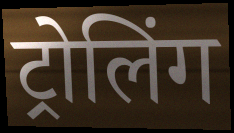
ट्रोलिंग